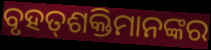
ବୃହତ୍‍ଶକ୍ତିମାନଙ୍କର